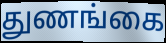
துணங்கை